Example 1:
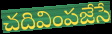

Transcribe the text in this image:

చదివింపజేసే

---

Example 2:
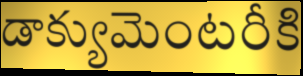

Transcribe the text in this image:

డాక్యుమెంటరీకి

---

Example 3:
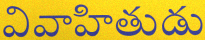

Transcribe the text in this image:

వివాహితుడు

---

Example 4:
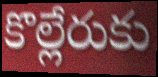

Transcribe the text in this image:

కొల్లేరుకు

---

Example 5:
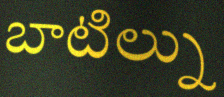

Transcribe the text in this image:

బాటిల్ను